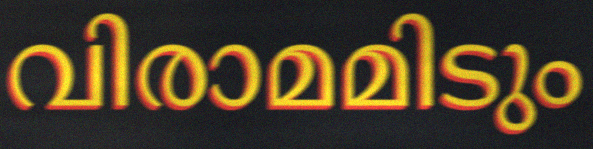
വിരാമമിടും